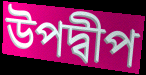
উপদ্বীপ